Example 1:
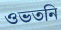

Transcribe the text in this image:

ওভতনি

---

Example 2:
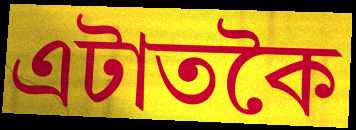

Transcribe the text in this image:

এটাতকৈ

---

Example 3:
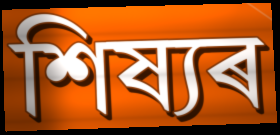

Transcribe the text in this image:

শিষ্যৰ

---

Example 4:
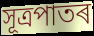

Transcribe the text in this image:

সূত্ৰপাতৰ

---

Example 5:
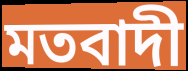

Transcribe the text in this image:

মতবাদী